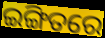
ଇଙ୍ଗିତରେ